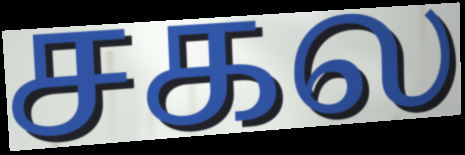
சகல